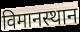
विमानस्थान